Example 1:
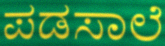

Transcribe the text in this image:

ಪಡಸಾಲೆ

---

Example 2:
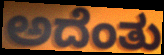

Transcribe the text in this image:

ಅದೆಂತು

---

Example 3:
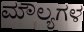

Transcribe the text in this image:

ಮೌಲ್ಯಗಳ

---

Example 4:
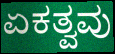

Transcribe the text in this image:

ಏಕತ್ವವು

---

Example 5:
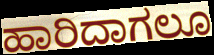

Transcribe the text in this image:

ಹಾರಿದಾಗಲೂ